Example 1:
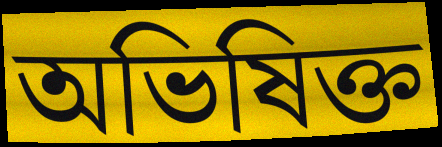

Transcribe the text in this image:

অভিষিক্ত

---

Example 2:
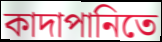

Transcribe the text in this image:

কাদাপানিতে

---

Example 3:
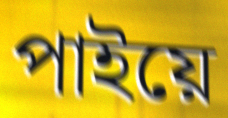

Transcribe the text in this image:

পাইয়ে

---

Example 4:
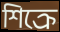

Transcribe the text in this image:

শিক্রে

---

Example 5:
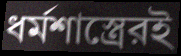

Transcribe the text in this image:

ধর্মশাস্ত্রেরই